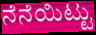
ನೆನೆಯಿಟ್ಟು